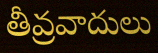
తీవ్రవాదులు